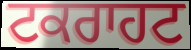
ਟਕਰਾਹਟ